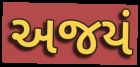
અજયં